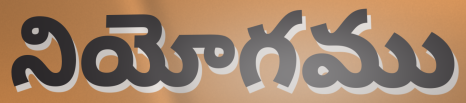
నియోగము